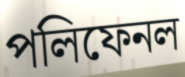
পলিফেনল